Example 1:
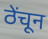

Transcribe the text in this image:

ठेंचून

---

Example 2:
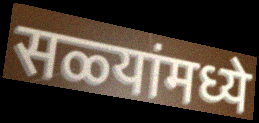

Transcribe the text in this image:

सळ्यांमध्ये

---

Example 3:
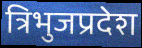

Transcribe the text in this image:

त्रिभुजप्रदेश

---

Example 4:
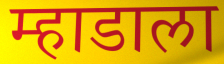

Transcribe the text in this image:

म्हाडाला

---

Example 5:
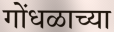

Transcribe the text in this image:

गोंधळाच्या